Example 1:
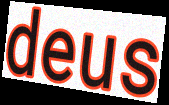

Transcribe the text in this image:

deus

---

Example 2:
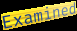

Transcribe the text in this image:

Examined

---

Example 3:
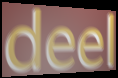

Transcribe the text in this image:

deel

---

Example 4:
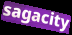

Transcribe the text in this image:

sagacity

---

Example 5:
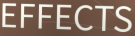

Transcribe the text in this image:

EFFECTS